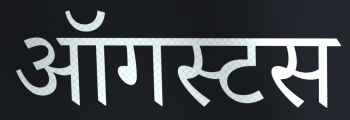
ऑगस्टस